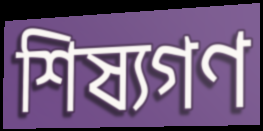
শিষ্যগণ